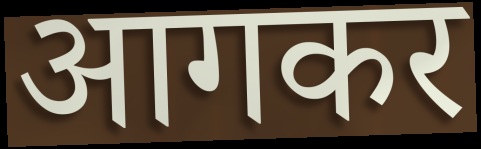
आगकर